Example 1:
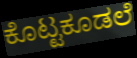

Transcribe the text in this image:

ಕೊಟ್ಟಕೂಡಲೆ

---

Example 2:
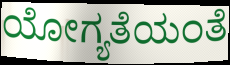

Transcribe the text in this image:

ಯೋಗ್ಯತೆಯಂತೆ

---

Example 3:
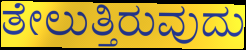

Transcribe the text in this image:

ತೇಲುತ್ತಿರುವುದು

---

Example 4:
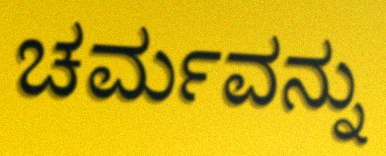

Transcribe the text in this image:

ಚರ್ಮವನ್ನು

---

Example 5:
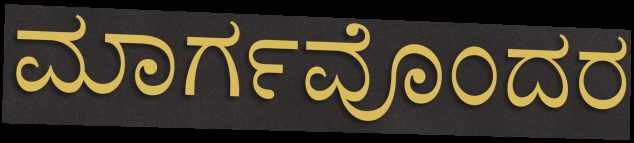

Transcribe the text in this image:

ಮಾರ್ಗವೊಂದರ